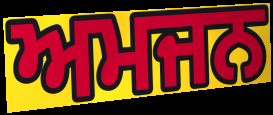
ਅਮਜਨ